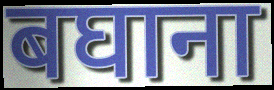
बघाना